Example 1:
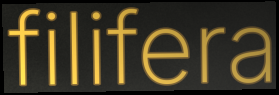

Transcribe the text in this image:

filifera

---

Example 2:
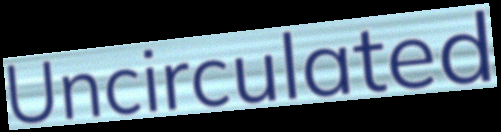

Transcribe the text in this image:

Uncirculated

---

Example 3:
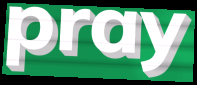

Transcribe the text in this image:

pray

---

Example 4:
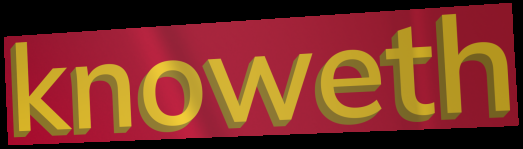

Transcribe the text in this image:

knoweth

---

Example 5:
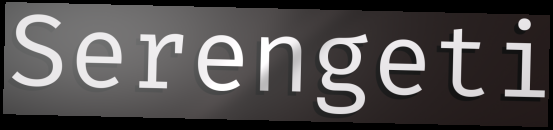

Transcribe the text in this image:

Serengeti